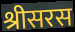
श्रीसरस